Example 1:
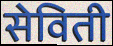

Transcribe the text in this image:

सेविती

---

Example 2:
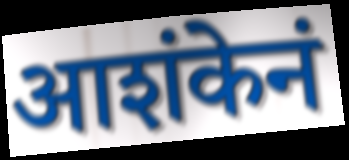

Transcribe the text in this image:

आशंकेनं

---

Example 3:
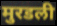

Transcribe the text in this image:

मुरडली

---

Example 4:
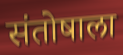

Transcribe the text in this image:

संतोषाला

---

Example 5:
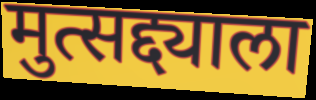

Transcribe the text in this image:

मुत्सद्द्याला